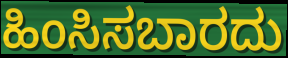
ಹಿಂಸಿಸಬಾರದು